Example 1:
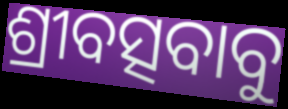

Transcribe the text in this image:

ଶ୍ରୀବତ୍ସବାବୁ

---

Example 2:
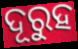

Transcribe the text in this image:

ଦୂରୁହ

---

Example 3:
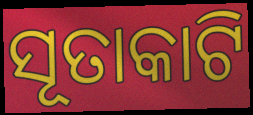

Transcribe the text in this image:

ସୂତାକାଟି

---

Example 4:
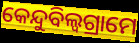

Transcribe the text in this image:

କେନ୍ଦୁବିଲ୍ଵଗ୍ରାମେ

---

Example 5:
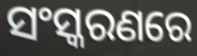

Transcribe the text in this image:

ସଂସ୍କରଣରେ